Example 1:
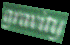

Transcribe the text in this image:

gravity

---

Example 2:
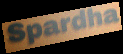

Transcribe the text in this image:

Spardha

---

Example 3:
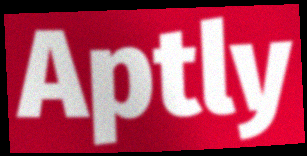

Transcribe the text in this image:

Aptly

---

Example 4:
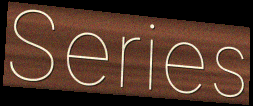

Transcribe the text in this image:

Series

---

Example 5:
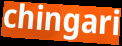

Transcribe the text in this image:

chingari